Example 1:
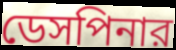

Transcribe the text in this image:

ডেসপিনার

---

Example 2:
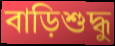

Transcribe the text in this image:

বাড়িশুদ্ধু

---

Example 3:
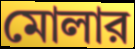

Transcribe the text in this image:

মোলার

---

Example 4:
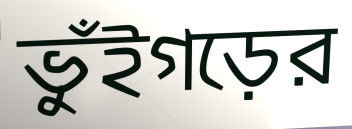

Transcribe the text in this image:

ভুঁইগড়ের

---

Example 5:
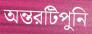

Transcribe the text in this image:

অন্তরটিপুনি